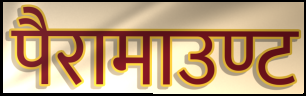
पैरामाउण्ट